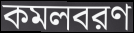
কমলবরণ